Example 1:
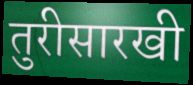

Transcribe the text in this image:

तुरीसारखी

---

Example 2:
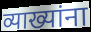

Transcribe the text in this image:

व्याख्यांना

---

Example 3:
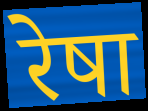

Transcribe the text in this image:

रेषा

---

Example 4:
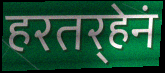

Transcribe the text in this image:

हरतर्‍हेनं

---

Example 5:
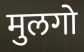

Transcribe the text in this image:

मुलगो